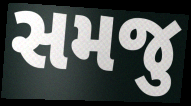
સમજુ